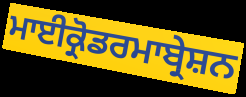
ਮਾਈਕ੍ਰੋਡਰਮਾਬ੍ਰੇਸ਼ਨ